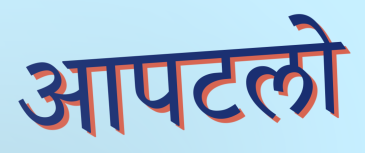
आपटलो